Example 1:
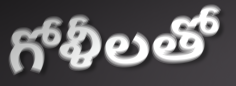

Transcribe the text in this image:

గోళీలతో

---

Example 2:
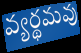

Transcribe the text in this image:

వ్యర్థమవు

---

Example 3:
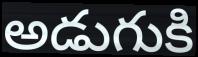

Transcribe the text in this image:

అడుగుకి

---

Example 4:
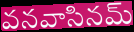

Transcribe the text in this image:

వనవాసినమ్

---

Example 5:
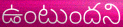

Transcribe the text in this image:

ఉంటుందని